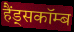
हैंड्सकॉम्ब